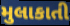
મુલાકાતી